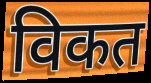
विकत